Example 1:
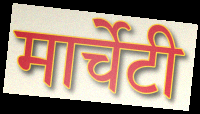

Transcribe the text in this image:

मार्चेटी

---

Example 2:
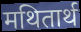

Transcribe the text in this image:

मथितार्थ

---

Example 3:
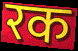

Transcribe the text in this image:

रक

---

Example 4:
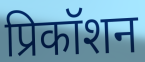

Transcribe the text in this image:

प्रिकॉशन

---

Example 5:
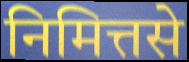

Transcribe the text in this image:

निमित्तसे